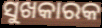
ସୁଖକାରକ